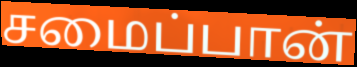
சமைப்பான்